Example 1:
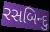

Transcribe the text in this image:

રસબિન્દુ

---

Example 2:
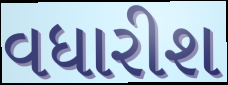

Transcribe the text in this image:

વધારીશ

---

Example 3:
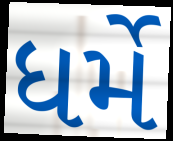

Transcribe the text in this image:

ધર્મે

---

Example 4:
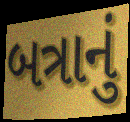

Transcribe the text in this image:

બત્રાનું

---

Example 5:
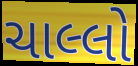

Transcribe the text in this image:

ચાલ્લો